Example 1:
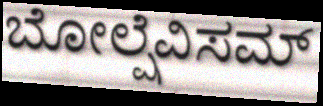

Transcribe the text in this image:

ಬೋಲ್ಷೆವಿಸಮ್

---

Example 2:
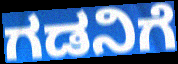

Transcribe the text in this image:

ಗಡನಿಗೆ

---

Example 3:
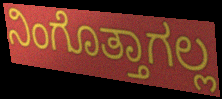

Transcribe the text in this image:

ನಿಂಗೊತ್ತಾಗಲ್ಲ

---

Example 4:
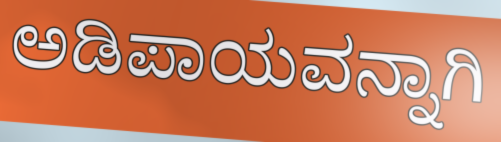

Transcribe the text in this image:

ಅಡಿಪಾಯವನ್ನಾಗಿ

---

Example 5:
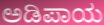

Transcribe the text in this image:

ಅಡಿಪಾಯ